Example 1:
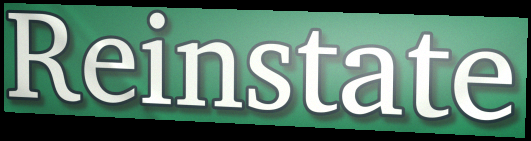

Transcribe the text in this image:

Reinstate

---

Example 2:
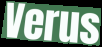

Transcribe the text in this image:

Verus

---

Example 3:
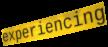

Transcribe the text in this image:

experiencing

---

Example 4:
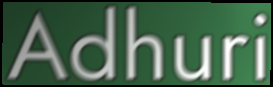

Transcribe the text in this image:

Adhuri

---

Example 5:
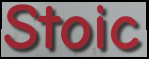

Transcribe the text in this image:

Stoic